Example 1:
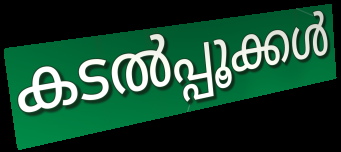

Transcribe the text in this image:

കടൽപ്പൂക്കൾ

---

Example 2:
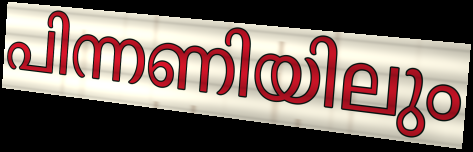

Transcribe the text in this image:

പിന്നണിയിലും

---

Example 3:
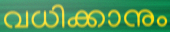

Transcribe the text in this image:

വധിക്കാനും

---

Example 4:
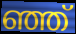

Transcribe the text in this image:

ഞ്ഞ്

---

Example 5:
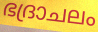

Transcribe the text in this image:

ഭദ്രാചലം